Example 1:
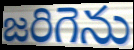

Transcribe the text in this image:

జరిగెను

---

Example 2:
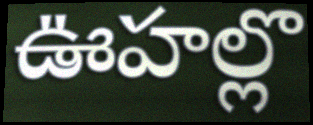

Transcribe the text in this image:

ఊహల్లొ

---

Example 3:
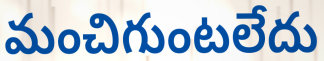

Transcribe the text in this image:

మంచిగుంటలేదు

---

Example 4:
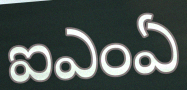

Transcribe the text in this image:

ఐఎంఏ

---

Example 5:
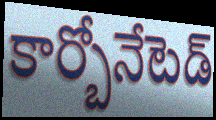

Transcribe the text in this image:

కార్బోనేటెడ్